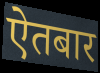
ऐतबार